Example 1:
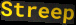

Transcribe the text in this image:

Streep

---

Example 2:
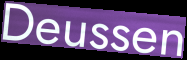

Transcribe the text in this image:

Deussen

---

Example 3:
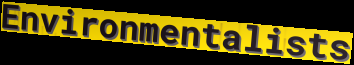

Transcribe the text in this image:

Environmentalists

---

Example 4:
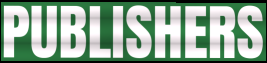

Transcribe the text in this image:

PUBLISHERS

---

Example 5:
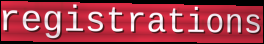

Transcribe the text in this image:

registrations